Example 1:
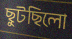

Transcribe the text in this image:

ছুটছিলো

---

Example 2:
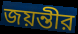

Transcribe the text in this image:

জয়ন্তীর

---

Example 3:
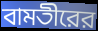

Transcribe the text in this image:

বামতীরের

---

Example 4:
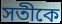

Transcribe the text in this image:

সতীকে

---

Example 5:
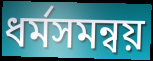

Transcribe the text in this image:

ধর্মসমন্বয়